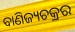
ବାଣିଜ୍ୟଚକ୍ରର